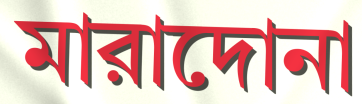
মারাদোনা